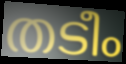
തടീം